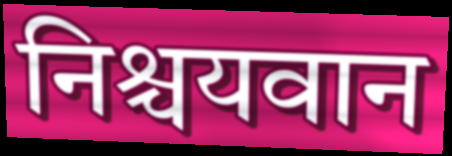
निश्चयवान